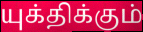
யுக்திக்கும்